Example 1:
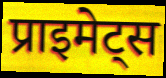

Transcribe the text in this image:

प्राइमेट्स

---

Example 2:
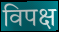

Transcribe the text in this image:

विपक्ष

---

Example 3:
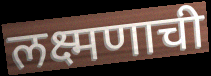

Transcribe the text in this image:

लक्ष्मणाची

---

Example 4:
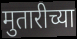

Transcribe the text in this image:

मुतारीच्या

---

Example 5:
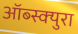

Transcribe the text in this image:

ऑब्स्क्युरा